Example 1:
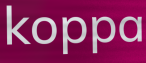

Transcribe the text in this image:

koppa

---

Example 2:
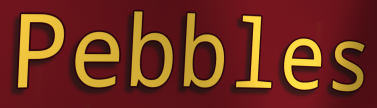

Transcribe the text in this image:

Pebbles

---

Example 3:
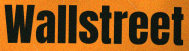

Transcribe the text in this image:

Wallstreet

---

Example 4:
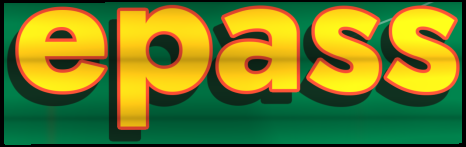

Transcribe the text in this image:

epass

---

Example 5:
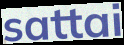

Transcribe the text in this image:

sattai